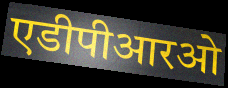
एडीपीआरओ